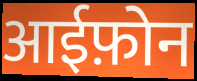
आईफ़ोन